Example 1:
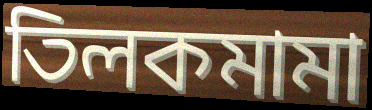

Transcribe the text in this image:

তিলকমামা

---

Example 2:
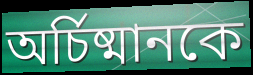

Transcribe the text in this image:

অর্চিষ্মানকে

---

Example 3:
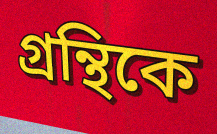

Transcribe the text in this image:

গ্রন্থিকে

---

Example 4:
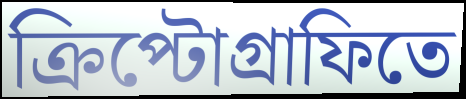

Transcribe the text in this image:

ক্রিপ্টোগ্রাফিতে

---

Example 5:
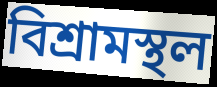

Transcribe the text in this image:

বিশ্রামস্থল